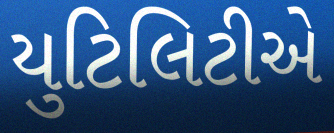
યુટિલિટીએ